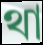
থা